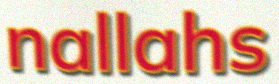
nallahs